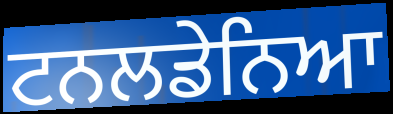
ਟਨਲਡੇਨਿਆ